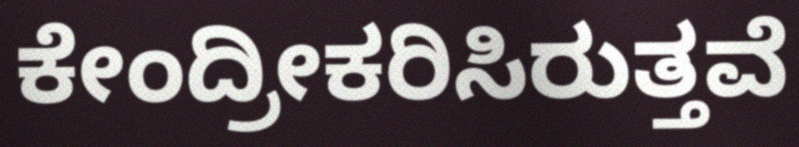
ಕೇಂದ್ರೀಕರಿಸಿರುತ್ತವೆ